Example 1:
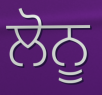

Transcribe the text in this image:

ਲੋਨੂ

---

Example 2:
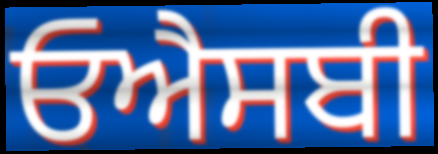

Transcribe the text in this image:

ਓਐਸਬੀ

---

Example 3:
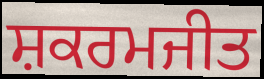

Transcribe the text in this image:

ਸ਼ਕਰਮਜੀਤ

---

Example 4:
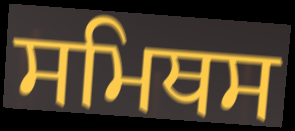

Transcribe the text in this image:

ਸਮਿਥਸ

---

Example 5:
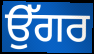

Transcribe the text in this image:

ਉੱਗਰ